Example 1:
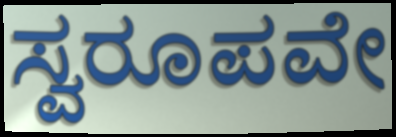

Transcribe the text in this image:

ಸ್ವರೂಪವೇ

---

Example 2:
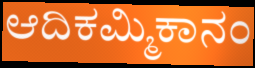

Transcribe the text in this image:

ಆದಿಕಮ್ಮಿಕಾನಂ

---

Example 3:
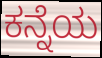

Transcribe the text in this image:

ಕನ್ನೆಯ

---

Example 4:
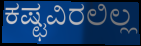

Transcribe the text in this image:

ಕಷ್ಟವಿರಲಿಲ್ಲ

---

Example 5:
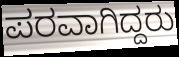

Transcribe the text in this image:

ಪರವಾಗಿದ್ದರು